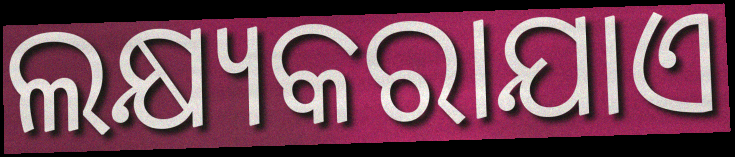
ଲକ୍ଷ୍ୟକରାଯାଏ